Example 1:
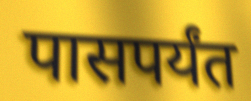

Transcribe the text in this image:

पासपर्यंत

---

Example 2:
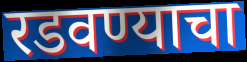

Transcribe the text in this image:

रडवण्याचा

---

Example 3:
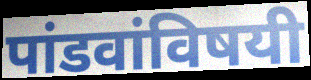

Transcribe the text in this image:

पांडवांविषयी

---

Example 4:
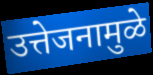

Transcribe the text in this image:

उत्तेजनामुळे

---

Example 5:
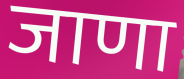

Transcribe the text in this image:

जाणा